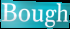
Bough